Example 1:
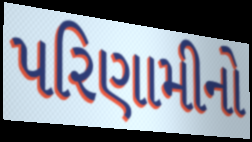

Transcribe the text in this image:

પરિણામીનો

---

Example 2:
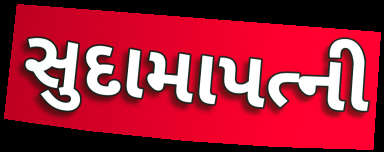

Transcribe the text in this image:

સુદામાપત્ની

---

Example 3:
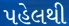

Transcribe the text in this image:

પહેલથી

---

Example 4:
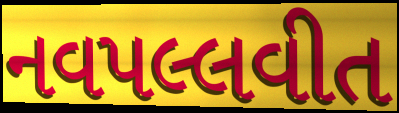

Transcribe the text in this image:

નવપલ્લવીત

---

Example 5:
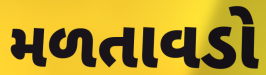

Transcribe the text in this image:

મળતાવડો